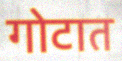
गोटात